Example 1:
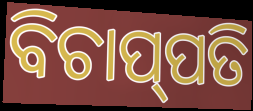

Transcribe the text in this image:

ବିଚାପ୍‌ପତି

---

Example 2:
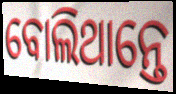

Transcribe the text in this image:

ବୋଲିଥାନ୍ତେ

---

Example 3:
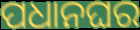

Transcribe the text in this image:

ପଧାନଘର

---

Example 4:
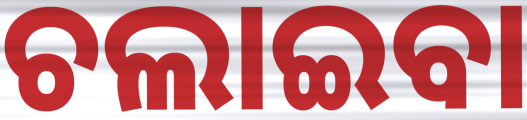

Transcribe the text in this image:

ଚଲାଇବା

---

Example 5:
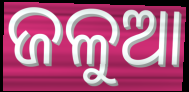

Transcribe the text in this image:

ଜଳୁଆ